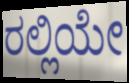
ರಲ್ಲಿಯೇ